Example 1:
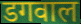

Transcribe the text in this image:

डगवाल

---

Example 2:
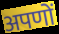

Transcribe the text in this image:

अपणों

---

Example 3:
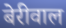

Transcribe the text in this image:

बेरीवाल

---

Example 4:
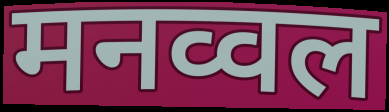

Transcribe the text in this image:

मनव्वल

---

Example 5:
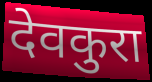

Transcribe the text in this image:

देवकुरा